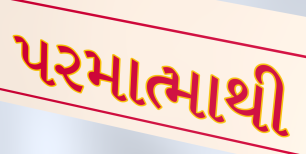
પરમાત્માથી